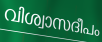
വിശ്വാസദീപം